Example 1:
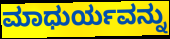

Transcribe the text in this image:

ಮಾಧುರ್ಯವನ್ನು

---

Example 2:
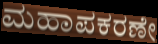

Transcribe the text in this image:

ಮಹಾಪಕರಣೇ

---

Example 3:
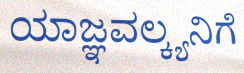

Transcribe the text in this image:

ಯಾಜ್ಞವಲ್ಕ್ಯನಿಗೆ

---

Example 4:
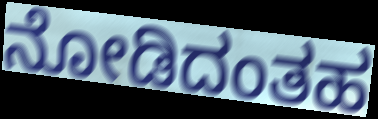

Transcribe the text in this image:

ನೋಡಿದಂತಹ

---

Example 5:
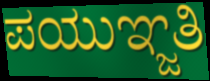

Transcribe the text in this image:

ಪಯುಞ್ಜತಿ